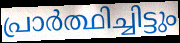
പ്രാർത്ഥിച്ചിട്ടും